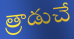
త్రాడుచే